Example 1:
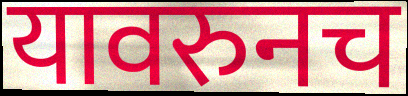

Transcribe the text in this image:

यावरुनच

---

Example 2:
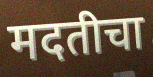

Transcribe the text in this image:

मदतीचा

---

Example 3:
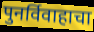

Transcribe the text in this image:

पुनर्विवाहाचा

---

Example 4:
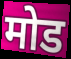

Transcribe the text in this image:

मोड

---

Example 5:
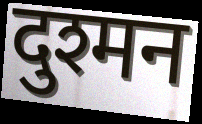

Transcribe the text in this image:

दुश्मन